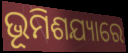
ଭୂମିଶଯ୍ୟାରେ